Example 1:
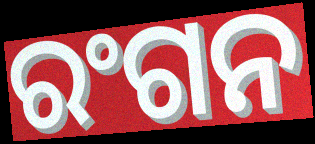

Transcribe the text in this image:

ରଂଗନ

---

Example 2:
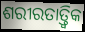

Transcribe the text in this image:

ଶରୀରତାତ୍ତ୍ଵିକ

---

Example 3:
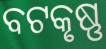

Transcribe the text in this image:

ବଟକୃଷ୍ଣ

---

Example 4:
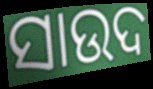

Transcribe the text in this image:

ସାଉଦ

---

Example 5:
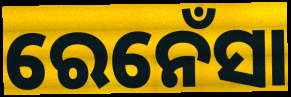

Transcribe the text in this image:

ରେନେଁସା